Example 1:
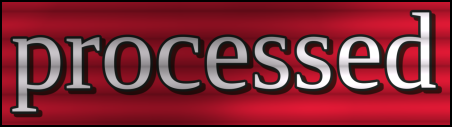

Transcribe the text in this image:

processed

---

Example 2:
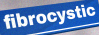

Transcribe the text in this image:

fibrocystic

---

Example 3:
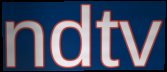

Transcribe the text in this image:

ndtv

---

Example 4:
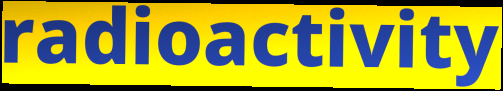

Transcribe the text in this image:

radioactivity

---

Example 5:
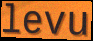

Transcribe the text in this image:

levu